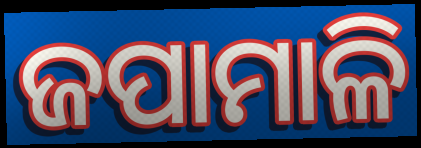
ଜପାମାଳି